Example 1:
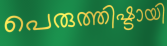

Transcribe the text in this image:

പെരുത്തിഷ്ടായി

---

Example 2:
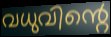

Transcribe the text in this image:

വധുവിന്റെ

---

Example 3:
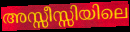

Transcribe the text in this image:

അസ്സീസ്സിയിലെ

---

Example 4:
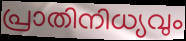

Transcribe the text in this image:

പ്രാതിനിധ്യവും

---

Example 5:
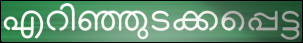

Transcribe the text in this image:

എറിഞ്ഞുടക്കപ്പെട്ട